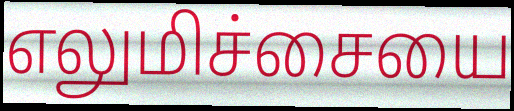
எலுமிச்சையை